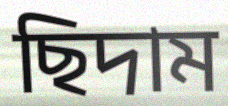
ছিদাম